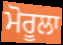
ਮੋਰੂਲਾ